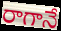
రాగానే